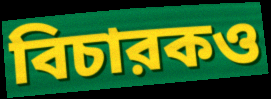
বিচারকও